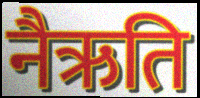
नैऋति